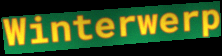
Winterwerp